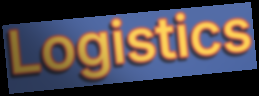
Logistics